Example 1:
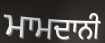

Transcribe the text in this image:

ਮਾਮਦਾਨੀ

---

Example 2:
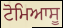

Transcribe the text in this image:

ਟੋਮਿਆਸੂ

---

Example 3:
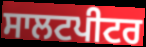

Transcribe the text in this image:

ਸਾਲਟਪੀਟਰ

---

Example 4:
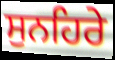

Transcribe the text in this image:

ਸੁਨਹਿਰੇ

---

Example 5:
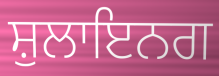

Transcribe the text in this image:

ਸ਼ੁਲਾਇਨਗ